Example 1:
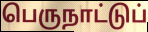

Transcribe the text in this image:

பெருநாட்டுப்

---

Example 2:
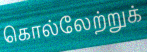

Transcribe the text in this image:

கொல்லேற்றுக்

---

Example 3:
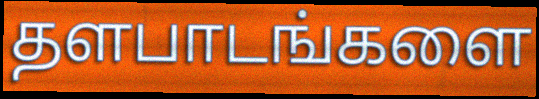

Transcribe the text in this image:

தளபாடங்களை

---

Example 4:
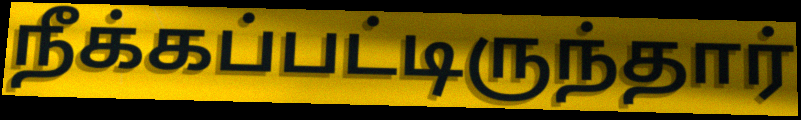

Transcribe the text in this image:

நீக்கப்பட்டிருந்தார்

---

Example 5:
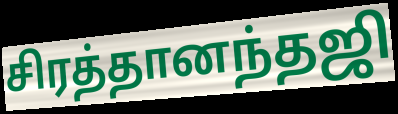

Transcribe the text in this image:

சிரத்தானந்தஜி